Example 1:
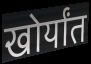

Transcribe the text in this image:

खोर्यांत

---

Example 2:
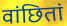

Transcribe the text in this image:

वांछितां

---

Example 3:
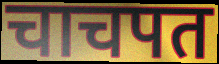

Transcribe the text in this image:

चाचपत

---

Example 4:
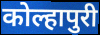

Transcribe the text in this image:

कोल्हापुरी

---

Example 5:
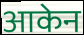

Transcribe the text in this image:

आकेन